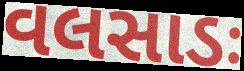
વલસાડઃ